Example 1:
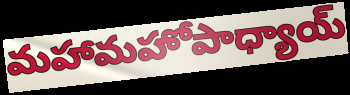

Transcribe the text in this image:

మహామహోపాధ్యాయ్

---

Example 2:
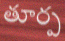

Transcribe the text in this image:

తూర్ప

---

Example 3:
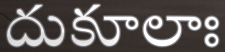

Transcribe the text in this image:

దుకూలాః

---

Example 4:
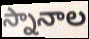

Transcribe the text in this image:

స్నానాల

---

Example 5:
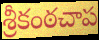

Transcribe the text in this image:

శ్రీకంఠచాప